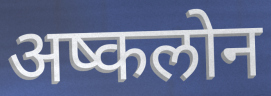
अष्कलोन